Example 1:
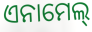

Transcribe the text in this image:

ଏନାମେଲ୍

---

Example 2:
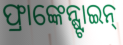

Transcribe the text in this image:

ଫ୍ରାଙ୍କେନ୍ଷ୍ଟାଇନ୍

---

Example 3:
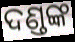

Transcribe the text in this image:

ଦଣ୍ଡଙ୍କ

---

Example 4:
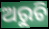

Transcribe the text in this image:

ଅରୁଚି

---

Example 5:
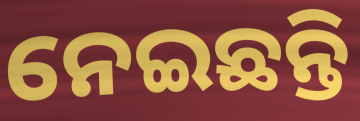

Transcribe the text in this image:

ନେଇଛନ୍ତି